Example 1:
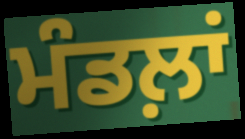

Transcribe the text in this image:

ਮੰਡਲ਼ਾਂ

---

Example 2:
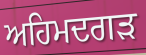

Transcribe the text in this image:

ਅਹਿਮਦਗੜ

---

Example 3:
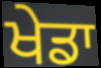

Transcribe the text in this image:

ਖੇਡਾ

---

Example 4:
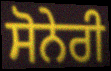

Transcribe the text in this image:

ਸੋਨੇਰੀ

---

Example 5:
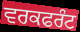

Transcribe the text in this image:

ਵਰਕਫਰੰਟ